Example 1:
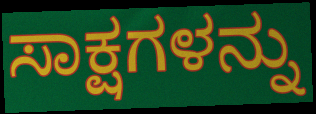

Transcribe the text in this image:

ಸಾಕ್ಷಗಳನ್ನು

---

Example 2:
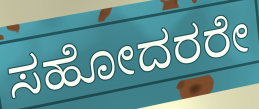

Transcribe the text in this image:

ಸಹೋದರರೇ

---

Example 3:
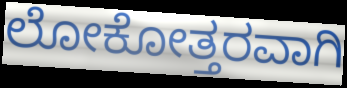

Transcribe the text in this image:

ಲೋಕೋತ್ತರವಾಗಿ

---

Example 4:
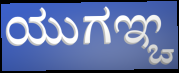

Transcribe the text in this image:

ಯುಗಞ್ಚ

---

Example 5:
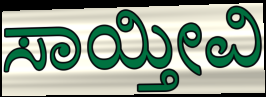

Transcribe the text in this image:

ಸಾಯ್ತೀವಿ